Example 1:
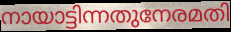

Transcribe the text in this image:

നായാട്ടിന്നതുനേരമതി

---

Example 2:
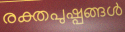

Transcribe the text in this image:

രക്തപുഷ്പങ്ങൾ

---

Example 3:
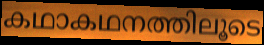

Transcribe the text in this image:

കഥാകഥനത്തിലൂടെ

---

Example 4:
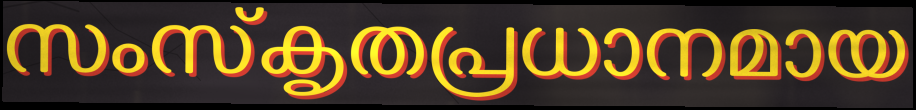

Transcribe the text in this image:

സംസ്‌കൃതപ്രധാനമായ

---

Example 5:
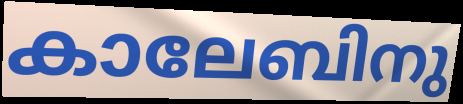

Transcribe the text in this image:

കാലേബിനു